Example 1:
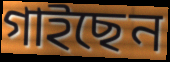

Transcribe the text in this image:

গাইছেন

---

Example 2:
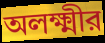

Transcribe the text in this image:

অলক্ষ্মীর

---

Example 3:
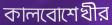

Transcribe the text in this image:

কালবোশেখীর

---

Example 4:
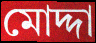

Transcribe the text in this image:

মোদ্দা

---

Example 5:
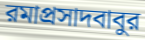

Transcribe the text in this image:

রমাপ্রসাদবাবুর